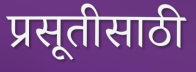
प्रसूतीसाठी